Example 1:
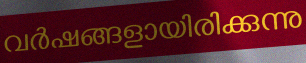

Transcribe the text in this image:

വർഷങ്ങളായിരിക്കുന്നു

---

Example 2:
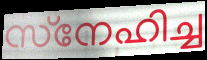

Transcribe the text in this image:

സ്‌നേഹിച്ച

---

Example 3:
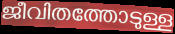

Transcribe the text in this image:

ജീവിതത്തോടുള്ള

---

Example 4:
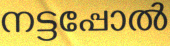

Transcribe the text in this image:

നട്ടപ്പോൽ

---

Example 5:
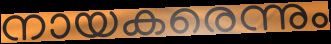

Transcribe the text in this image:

നായകരെന്നും